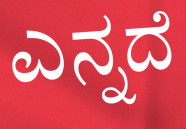
ಎನ್ನದೆ